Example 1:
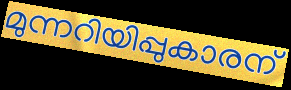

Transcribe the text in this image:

മുന്നറിയിപ്പുകാരന്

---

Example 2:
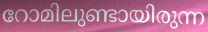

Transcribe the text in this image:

റോമിലുണ്ടായിരുന്ന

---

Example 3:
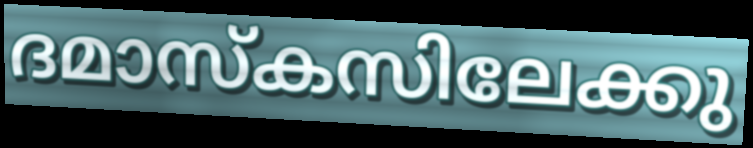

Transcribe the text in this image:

ദമാസ്കസിലേക്കു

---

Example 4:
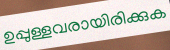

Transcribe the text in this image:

ഉപ്പുള്ളവരായിരിക്കുക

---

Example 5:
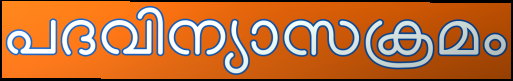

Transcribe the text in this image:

പദവിന്യാസക്രമം